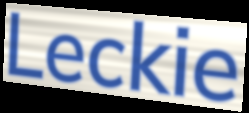
Leckie